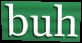
buh